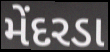
મેંદરડા